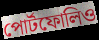
পোর্টফোলিও